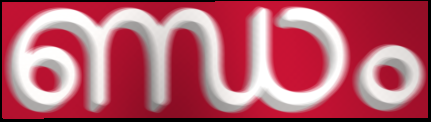
ണ്ഡം